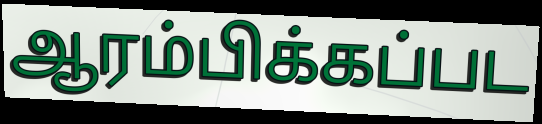
ஆரம்பிக்கப்பட